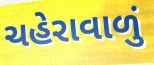
ચહેરાવાળું